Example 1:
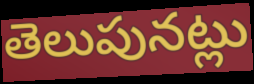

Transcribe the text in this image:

తెలుపునట్లు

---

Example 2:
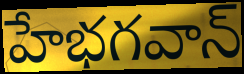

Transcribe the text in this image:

హేభగవాన్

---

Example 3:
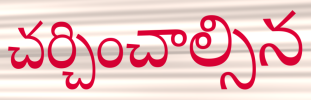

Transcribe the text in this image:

చర్చించాల్సిన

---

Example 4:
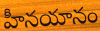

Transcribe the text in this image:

హీనయానం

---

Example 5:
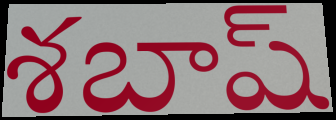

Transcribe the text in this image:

శబాష్